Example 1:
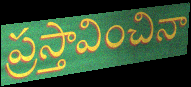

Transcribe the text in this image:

ప్రస్తావించినా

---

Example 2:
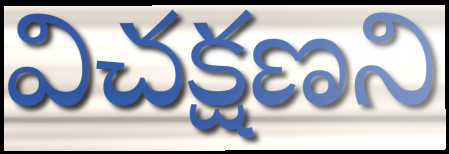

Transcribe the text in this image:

విచక్షణని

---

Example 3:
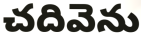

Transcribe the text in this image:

చదివెను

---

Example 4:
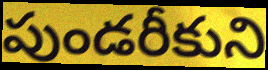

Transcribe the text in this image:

పుండరీకుని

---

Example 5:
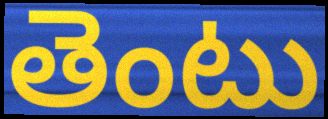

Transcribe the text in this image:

తెంటు